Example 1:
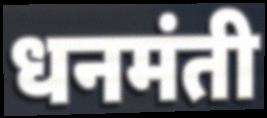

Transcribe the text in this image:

धनमंती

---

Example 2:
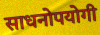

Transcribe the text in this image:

साधनोपयोगी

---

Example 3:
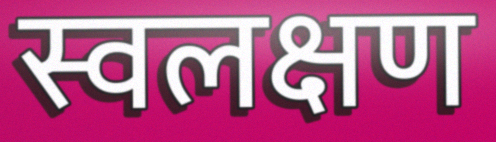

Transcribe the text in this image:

स्वलक्षण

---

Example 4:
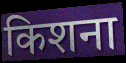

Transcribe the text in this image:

किशना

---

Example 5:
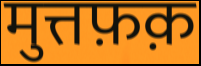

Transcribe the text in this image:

मुत्तफ़क़